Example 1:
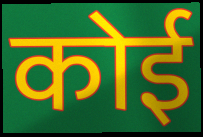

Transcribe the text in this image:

कोई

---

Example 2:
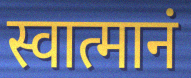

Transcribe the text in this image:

स्वात्मानं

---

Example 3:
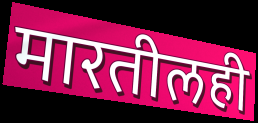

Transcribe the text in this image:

मारतीलही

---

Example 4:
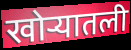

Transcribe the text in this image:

खोऱ्यातली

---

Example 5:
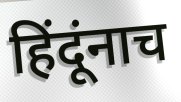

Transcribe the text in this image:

हिंदूंनाच